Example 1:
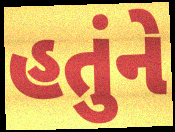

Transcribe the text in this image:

હતુંને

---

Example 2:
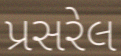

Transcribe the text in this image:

પ્રસરેલ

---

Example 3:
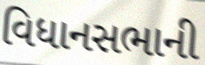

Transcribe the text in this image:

વિધાનસભાની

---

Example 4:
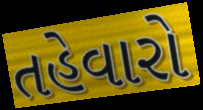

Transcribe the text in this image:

તહેવારો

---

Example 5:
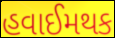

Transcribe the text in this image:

હવાઈમથક